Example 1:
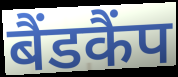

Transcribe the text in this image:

बैंडकैंप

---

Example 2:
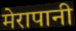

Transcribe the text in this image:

मेरापानी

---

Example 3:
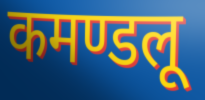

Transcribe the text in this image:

कमण्डलू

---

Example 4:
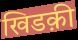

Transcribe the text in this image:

खिडक़ी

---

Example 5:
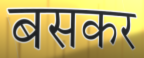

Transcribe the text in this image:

बसकर